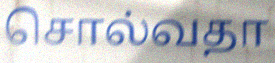
சொல்வதா